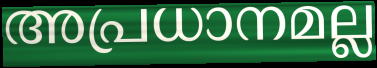
അപ്രധാനമല്ല